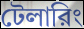
টেলারিং